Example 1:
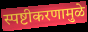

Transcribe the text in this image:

स्पष्टीकरणामुळे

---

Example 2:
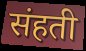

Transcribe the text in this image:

संहती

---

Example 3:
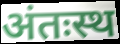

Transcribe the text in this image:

अंतःस्थ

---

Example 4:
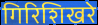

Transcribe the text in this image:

गिरिशिखरे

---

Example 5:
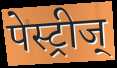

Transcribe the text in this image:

पेस्ट्रीज्